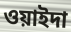
ওয়াইদা